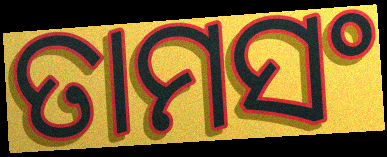
ତାମସଂ